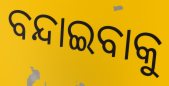
ବନ୍ଦାଇବାକୁ